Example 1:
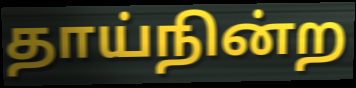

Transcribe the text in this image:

தாய்நின்ற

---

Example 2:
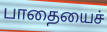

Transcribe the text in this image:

பாதையைச்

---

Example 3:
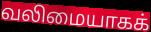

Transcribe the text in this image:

வலிமையாகக்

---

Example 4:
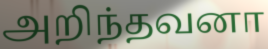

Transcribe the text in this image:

அறிந்தவனா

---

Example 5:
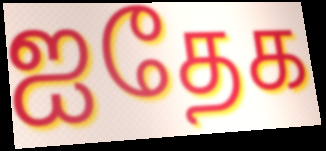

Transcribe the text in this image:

ஐதேக